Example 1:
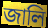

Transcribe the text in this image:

জালি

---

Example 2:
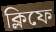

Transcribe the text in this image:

ক্লিফে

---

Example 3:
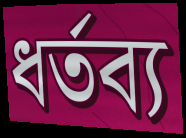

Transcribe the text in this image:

ধর্তব্য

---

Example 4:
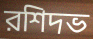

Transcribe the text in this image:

রশিদভ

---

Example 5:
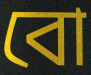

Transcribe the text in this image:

বো